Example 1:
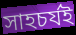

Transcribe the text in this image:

সাহচর্যই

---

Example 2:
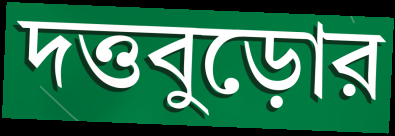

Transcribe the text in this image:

দত্তবুড়োর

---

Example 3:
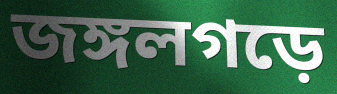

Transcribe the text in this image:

জঙ্গলগড়ে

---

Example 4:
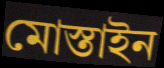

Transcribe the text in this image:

মোস্তাইন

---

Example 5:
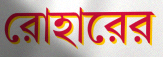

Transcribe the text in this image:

রোহারের